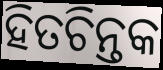
ହିତଚିନ୍ତକ